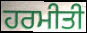
ਹਰਮੀਤੀ